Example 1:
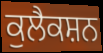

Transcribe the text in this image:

ਕੁਲੈਕਸ਼ਨ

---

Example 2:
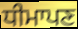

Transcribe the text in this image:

ਧੀਮਾਪਣ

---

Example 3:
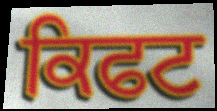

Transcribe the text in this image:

ਕਿਫਟ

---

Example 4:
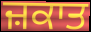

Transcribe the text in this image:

ਜ਼ਕਾਤ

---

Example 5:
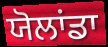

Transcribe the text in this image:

ਯੋਲਾਂਡਾ